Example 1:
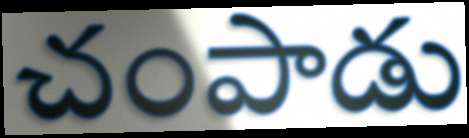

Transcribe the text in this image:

చంపాడు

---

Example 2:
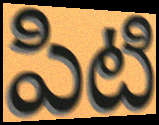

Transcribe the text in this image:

పిటి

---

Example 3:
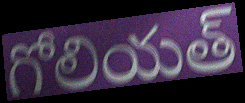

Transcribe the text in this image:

గోలియత్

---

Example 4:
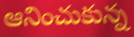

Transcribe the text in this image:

ఆనించుకున్న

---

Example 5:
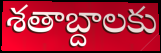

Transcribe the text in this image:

శతాబ్దాలకు